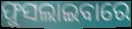
ଫୁସଲାଇବାରେ